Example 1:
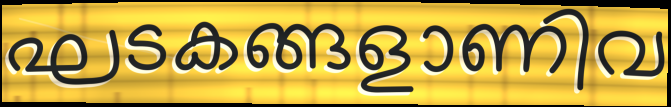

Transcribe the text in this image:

ഘടകങ്ങളാണിവ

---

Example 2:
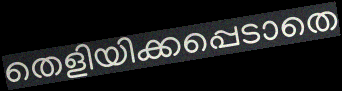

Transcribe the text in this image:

തെളിയിക്കപ്പെടാതെ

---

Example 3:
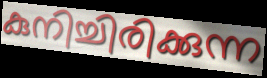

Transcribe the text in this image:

കുനിച്ചിരിക്കുന്ന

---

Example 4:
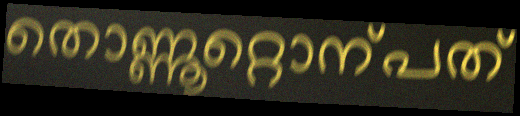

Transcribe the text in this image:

തൊണ്ണൂറ്റൊന്പത്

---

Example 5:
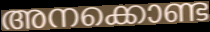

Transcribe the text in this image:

അനക്കൊണ്ട